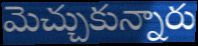
మెచ్చుకున్నారు